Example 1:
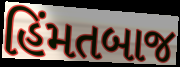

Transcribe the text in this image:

હિંમતબાજ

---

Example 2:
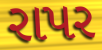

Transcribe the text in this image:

રાપર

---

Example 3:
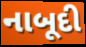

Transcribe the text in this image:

નાબૂદી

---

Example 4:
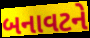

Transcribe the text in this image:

બનાવટને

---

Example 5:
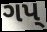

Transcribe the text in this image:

ગપ્